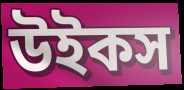
উইকস